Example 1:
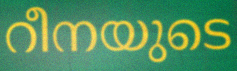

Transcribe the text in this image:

റീനയുടെ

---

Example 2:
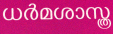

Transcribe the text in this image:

ധർമശാസ്ത്ര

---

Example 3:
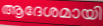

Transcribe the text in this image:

ആദേശമായി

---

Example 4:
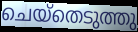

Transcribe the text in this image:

ചെയ്തെടുത്തു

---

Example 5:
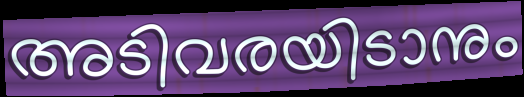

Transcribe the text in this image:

അടിവരയിടാനും